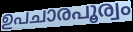
ഉപചാരപൂര്വം